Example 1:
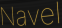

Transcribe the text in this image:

Navel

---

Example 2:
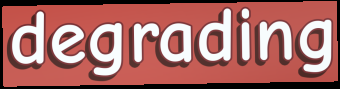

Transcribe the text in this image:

degrading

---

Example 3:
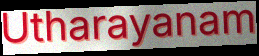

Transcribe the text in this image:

Utharayanam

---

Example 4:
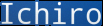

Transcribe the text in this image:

Ichiro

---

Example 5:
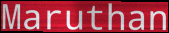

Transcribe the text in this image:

Maruthan